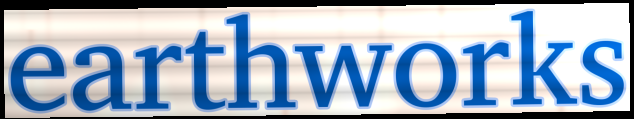
earthworks